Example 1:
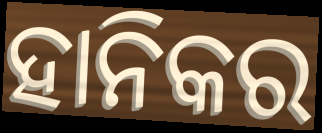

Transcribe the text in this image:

ହାନିକର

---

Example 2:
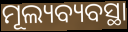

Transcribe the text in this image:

ମୂଲ୍ୟବ୍ୟବସ୍ଥା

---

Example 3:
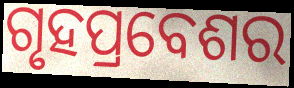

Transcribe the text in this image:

ଗୃହପ୍ରବେଶର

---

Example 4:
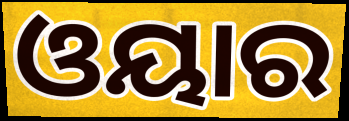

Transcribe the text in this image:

ଓୟାର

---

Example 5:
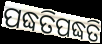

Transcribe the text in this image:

ପଦ୍ଧତିପଦ୍ଧତି